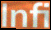
Infi